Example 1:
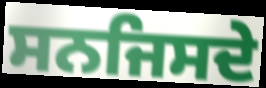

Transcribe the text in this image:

ਸਨਜਿਸਦੇ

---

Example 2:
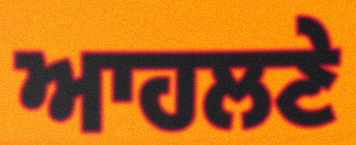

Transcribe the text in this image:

ਆਹਲਣੇ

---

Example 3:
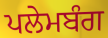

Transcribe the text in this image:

ਪਲੇਮਬੰਗ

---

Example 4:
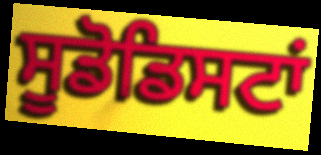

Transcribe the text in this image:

ਸੂਡੋਡਿਸਟਾਂ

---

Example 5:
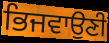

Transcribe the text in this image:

ਭਿਜਵਾਉਣੀ